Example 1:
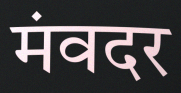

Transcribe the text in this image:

मंवदर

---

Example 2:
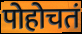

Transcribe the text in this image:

पोहोचतं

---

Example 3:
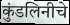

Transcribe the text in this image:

कुंडलिनीचे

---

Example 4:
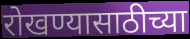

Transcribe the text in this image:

रोखण्यासाठीच्या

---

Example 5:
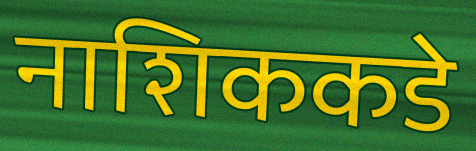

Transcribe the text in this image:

नाशिककडे